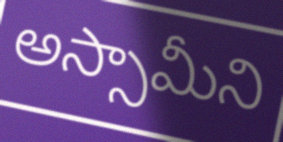
అస్సామీని